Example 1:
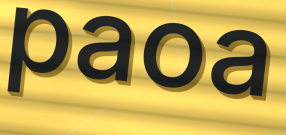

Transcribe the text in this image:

paoa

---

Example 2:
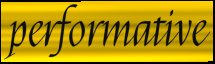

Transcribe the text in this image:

performative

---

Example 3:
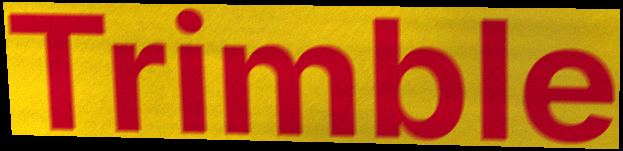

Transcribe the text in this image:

Trimble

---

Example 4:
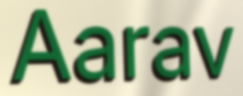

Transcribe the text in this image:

Aarav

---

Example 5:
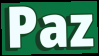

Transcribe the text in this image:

Paz